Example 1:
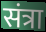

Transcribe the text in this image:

संत्रा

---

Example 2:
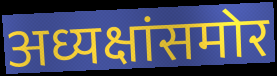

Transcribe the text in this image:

अध्यक्षांसमोर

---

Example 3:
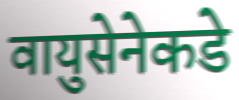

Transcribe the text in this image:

वायुसेनेकडे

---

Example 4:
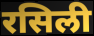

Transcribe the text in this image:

रसिली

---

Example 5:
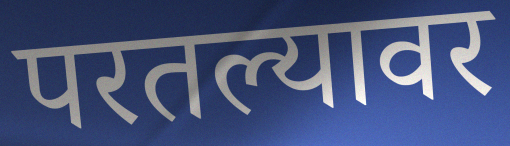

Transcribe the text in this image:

परतल्यावर